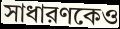
সাধারণকেও